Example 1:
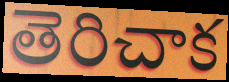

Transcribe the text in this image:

తెరిచాక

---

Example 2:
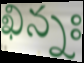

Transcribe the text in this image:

ఖిన్నః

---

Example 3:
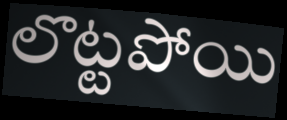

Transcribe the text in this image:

లొట్టపోయి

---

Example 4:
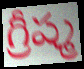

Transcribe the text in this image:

గ్రీష్మ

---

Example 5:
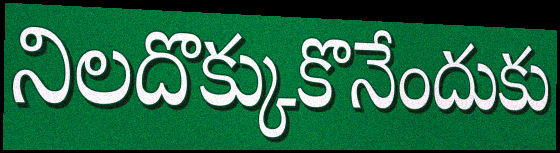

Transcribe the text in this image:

నిలదొక్కుకొనేందుకు